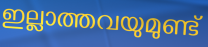
ഇല്ലാത്തവയുമുണ്ട്